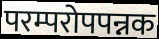
परम्परोपपन्नक